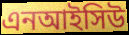
এনআইসিউ